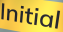
Initial